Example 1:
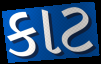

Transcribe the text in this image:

કાટ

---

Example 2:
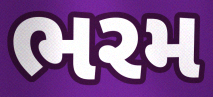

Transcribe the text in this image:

ભરમ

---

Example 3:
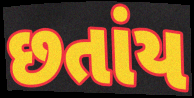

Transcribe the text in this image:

છતાંય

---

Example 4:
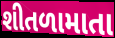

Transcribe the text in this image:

શીતળામાતા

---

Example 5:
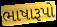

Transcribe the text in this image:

ભાષારૂપો